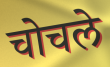
चोचले